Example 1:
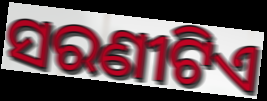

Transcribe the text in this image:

ସରଣୀଟିଏ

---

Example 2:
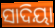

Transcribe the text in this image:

ସାଦିୟା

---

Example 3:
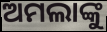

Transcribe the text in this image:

ଅମଲାଙ୍କୁ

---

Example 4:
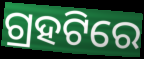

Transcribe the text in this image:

ଗ୍ରହଟିରେ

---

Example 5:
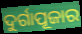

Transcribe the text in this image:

ଦୁର୍ଗାପୂଜାର